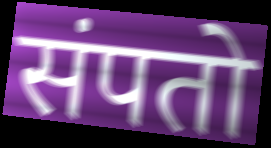
संपतो